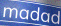
madad